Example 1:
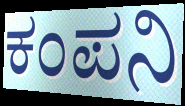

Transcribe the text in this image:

ಕಂಪನಿ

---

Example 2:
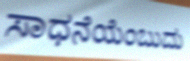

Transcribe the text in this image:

ಸಾಧನೆಯೆಂಬುದು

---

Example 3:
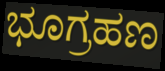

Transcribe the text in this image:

ಭೂಗ್ರಹಣ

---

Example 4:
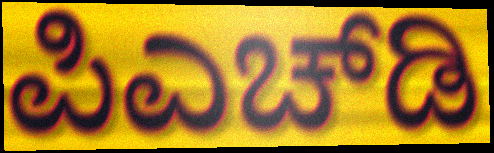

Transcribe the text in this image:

ಪಿಎಚ್‌ಡಿ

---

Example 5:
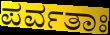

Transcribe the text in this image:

ಪರ್ವತಾಃ